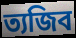
ত্যজিব